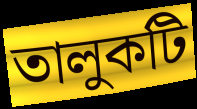
তালুকটি